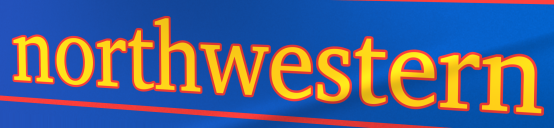
northwestern